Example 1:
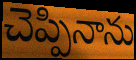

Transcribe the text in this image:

చెప్పినాను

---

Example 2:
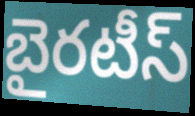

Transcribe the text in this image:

బైరటీస్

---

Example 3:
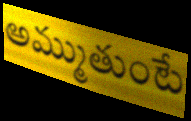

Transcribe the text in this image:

అమ్ముతుంటే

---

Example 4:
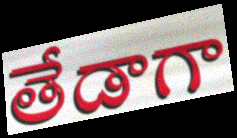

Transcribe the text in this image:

తేడాగా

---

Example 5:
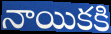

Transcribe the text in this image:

నాయికకి